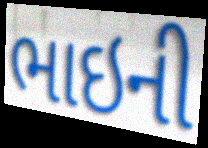
ભાઇની